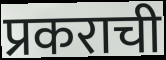
प्रकराची